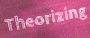
Theorizing